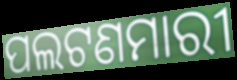
ପଲଟଣମାରୀ